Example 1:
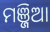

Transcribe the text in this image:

ମଞ୍ଜିଆ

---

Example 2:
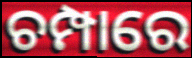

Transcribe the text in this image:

ଚମ୍ପାରେ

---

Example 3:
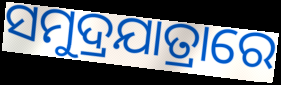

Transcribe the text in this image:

ସମୁଦ୍ରଯାତ୍ରାରେ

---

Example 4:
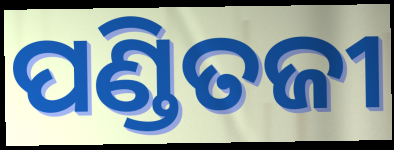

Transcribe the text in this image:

ପଣ୍ଡିତଜୀ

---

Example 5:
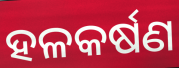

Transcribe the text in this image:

ହଳକର୍ଷଣ